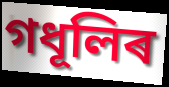
গধূলিৰ